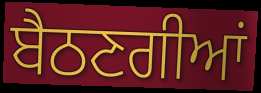
ਬੈਠਣਗੀਆਂ